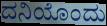
ದನಿಯೊಂದು